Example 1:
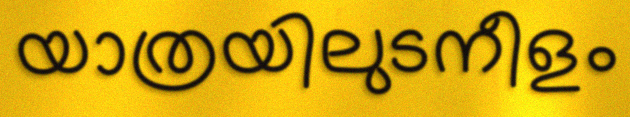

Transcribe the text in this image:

യാത്രയിലുടനീളം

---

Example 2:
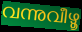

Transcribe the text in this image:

വന്നുവീഴൂ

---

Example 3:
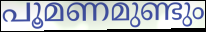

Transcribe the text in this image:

പൂമണമുണ്ടും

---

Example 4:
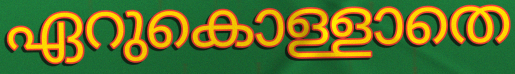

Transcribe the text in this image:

ഏറുകൊള്ളാതെ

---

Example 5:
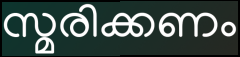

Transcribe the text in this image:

സ്മരിക്കണം